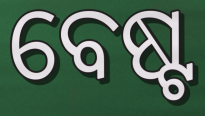
ବେଷ୍ଟ